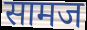
सामज